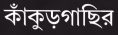
কাঁকুড়গাছির